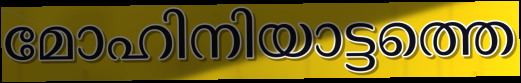
മോഹിനിയാട്ടത്തെ